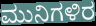
ಮುನಿಗಳಿರ